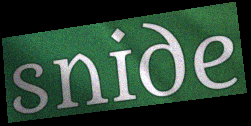
snide